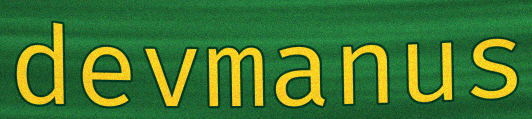
devmanus